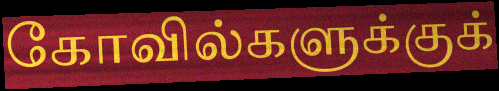
கோவில்களுக்குக்